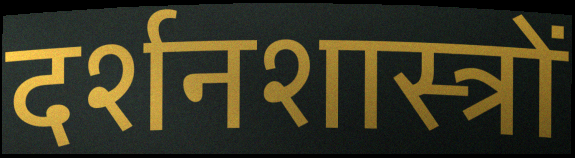
दर्शनशास्त्रों